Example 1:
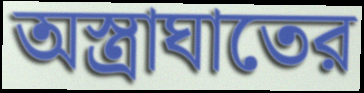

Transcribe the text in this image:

অস্ত্রাঘাতের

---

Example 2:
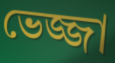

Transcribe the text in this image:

ভেজ্জা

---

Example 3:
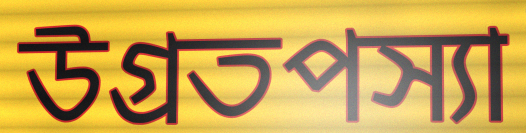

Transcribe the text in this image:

উগ্রতপস্যা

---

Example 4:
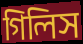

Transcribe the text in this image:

গিলিস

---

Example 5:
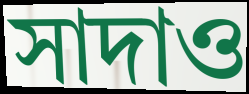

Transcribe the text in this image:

সাদাও